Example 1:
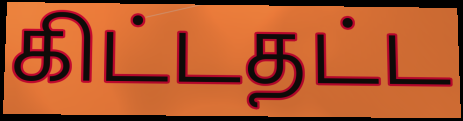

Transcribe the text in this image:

கிட்டதட்ட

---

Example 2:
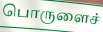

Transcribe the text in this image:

பொருளைச்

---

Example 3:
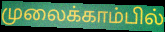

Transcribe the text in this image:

முலைக்காம்பில்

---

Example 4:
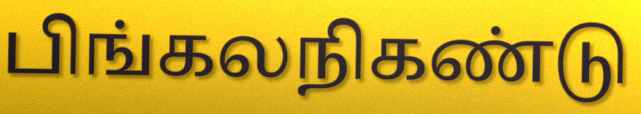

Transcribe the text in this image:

பிங்கலநிகண்டு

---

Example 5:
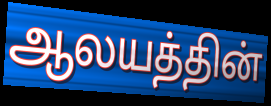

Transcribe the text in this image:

ஆலயத்தின்